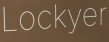
Lockyer